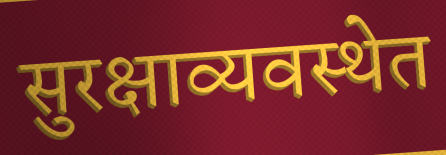
सुरक्षाव्यवस्थेत